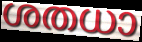
ശതധാ